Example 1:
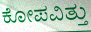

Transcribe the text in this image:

ಕೋಪವಿತ್ತು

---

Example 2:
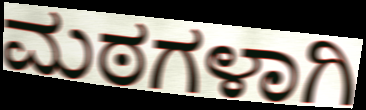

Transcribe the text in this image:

ಮಠಗಳಾಗಿ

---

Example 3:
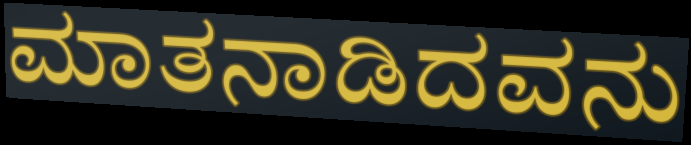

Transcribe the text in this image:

ಮಾತನಾಡಿದವನು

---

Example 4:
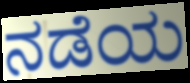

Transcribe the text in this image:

ನಡೆಯ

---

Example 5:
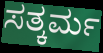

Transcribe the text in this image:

ಸತ್ಕರ್ಮ